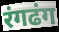
रंगढंग